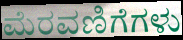
ಮೆರವಣಿಗೆಗಳು